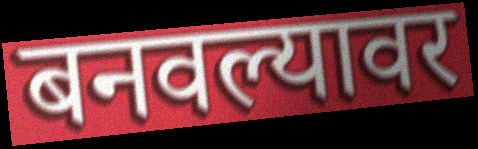
बनवल्यावर